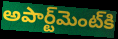
అపార్ట్‌మెంట్‌కి